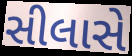
સીલાસે